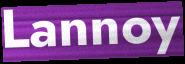
Lannoy